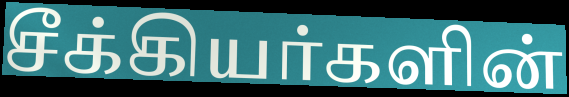
சீக்கியர்களின்